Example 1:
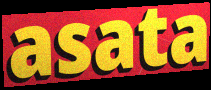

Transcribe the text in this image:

asata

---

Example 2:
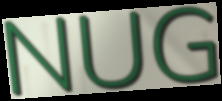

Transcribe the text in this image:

NUG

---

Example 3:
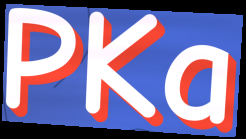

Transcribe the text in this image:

PKa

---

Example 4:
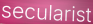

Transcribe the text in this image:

secularist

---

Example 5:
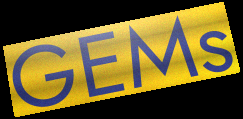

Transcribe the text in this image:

GEMs